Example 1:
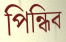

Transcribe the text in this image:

পিন্ধিব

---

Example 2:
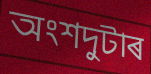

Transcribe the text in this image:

অংশদুটাৰ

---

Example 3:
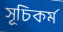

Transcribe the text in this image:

সূচিকৰ্ম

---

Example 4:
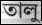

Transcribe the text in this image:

তালু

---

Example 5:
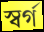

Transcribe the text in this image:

স্বৰ্গ